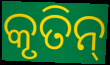
କୃତିନ୍